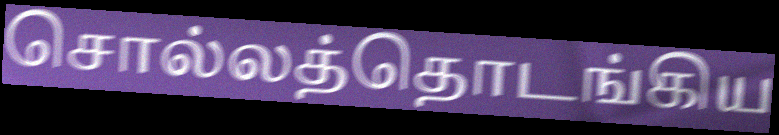
சொல்லத்தொடங்கிய